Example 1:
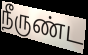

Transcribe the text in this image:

நீருண்ட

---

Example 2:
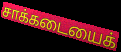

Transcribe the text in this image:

சாக்கடையைக்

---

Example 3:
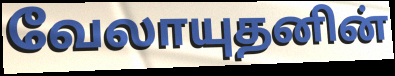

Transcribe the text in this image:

வேலாயுதனின்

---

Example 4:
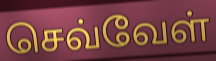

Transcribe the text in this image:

செவ்வேள்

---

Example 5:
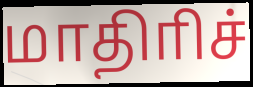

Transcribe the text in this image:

மாதிரிச்